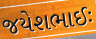
જયેશભાઈઃ